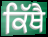
ਕਿੱਥੈ